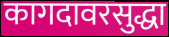
कागदावरसुद्धा